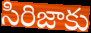
సిరిజాకు